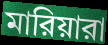
মারিয়ারা